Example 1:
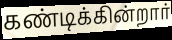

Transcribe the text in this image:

கண்டிக்கின்றார்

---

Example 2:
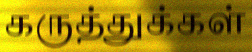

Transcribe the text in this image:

கருத்துக்கள்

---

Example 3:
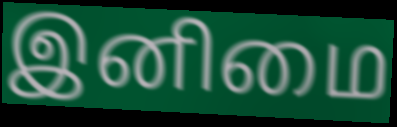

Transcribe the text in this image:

இனிமை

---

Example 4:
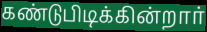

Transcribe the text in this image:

கண்டுபிடிக்கின்றார்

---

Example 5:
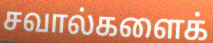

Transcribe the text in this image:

சவால்களைக்